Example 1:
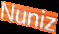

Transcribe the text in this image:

Nuniz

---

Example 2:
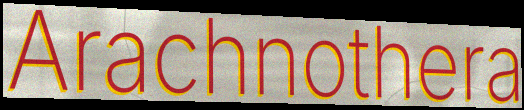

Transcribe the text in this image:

Arachnothera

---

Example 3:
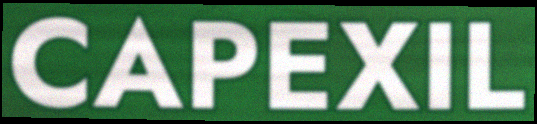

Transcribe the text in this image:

CAPEXIL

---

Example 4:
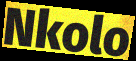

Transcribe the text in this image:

Nkolo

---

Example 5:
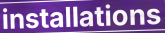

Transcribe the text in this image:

installations